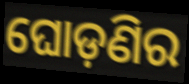
ଘୋଡ଼ଣିର